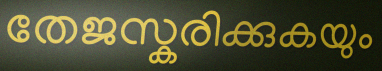
തേജസ്കരിക്കുകയും